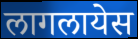
लागलायेस